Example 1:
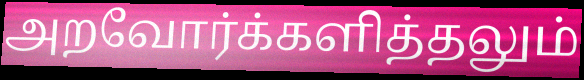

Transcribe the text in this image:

அறவோர்க்களித்தலும்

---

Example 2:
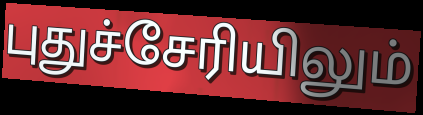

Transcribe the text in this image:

புதுச்சேரியிலும்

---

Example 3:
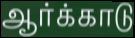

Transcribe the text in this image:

ஆர்க்காடு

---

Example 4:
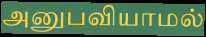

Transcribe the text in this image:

அனுபவியாமல்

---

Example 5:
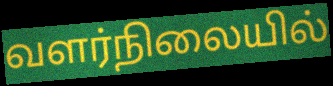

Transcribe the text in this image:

வளர்நிலையில்